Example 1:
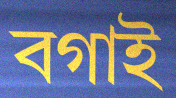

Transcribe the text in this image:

বগাই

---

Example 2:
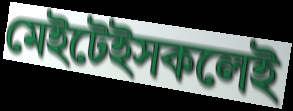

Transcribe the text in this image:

মেইটেইসকলেই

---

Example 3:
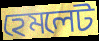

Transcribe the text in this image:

হেমলেট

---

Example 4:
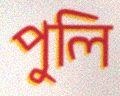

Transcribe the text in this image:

পুলি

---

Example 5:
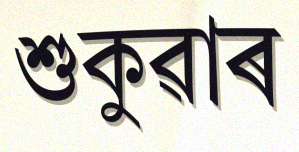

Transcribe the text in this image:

শুকুৱাৰ